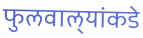
फुलवाल्यांकडे